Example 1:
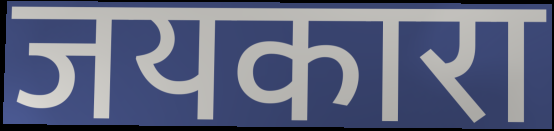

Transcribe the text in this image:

जयकारा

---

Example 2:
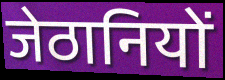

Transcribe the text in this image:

जेठानियों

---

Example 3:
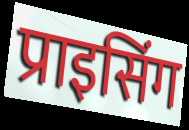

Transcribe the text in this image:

प्राइसिंग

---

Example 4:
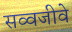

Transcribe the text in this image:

सव्वजीवे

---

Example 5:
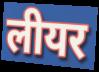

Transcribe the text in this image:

लीयर